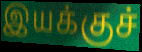
இயக்குச்